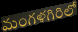
మంగళగిరిలో